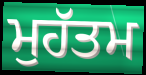
ਮੁਹੱਤਮ